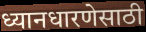
ध्यानधारणेसाठी